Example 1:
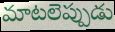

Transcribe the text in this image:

మాటలెప్పుడు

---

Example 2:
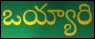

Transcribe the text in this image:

ఒయ్యారి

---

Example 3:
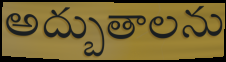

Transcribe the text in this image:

అద్బుతాలను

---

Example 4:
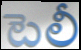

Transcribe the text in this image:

టెలీ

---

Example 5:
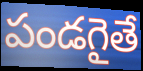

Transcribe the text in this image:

పండగైతే